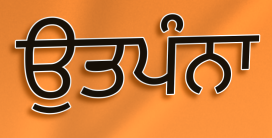
ਉਤਪੰਨਾ